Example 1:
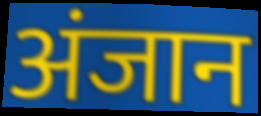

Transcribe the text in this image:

अंजान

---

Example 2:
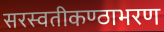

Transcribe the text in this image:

सरस्वतीकण्ठाभरण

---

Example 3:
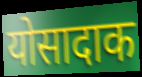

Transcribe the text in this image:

योसादाक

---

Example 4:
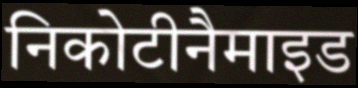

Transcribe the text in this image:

निकोटीनैमाइड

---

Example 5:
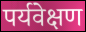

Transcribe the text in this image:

पर्यवेक्षण